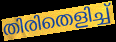
തിരിതെളിച്ച്